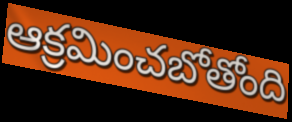
ఆక్రమించబోతోంది